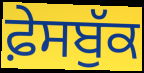
ਫ਼ੇਸਬੁੱਕ